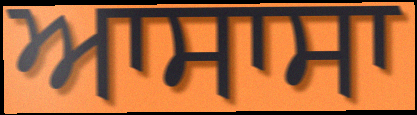
ਆਸਾਸਾ